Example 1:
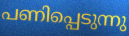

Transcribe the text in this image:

പണിപ്പെടുന്നു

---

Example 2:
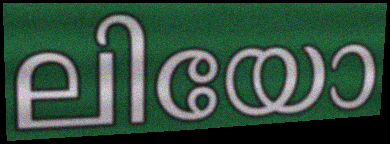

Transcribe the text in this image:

ലിയോ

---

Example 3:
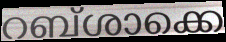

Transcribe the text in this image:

റബ്ശാക്കെ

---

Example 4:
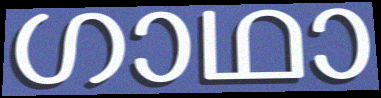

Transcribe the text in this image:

ഗാഥാ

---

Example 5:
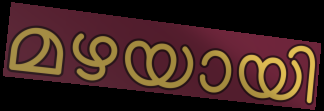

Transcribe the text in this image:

മഴയായി